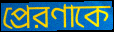
প্রেরণাকে